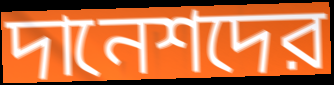
দানেশদের